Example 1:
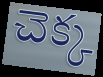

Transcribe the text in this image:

చెక్క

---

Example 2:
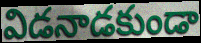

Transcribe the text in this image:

విడనాడకుండా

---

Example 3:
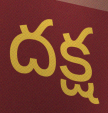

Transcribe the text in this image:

దక్ష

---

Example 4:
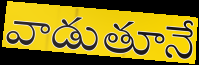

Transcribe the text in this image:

వాడుతూనే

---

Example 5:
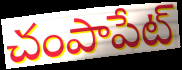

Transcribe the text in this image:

చంపాపేట్